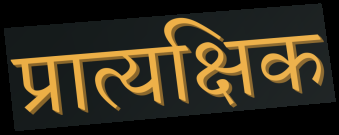
प्रात्यक्षिक